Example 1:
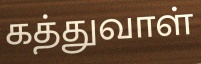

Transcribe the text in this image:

கத்துவாள்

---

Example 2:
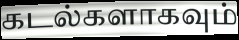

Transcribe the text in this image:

கடல்களாகவும்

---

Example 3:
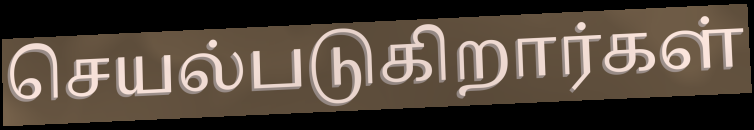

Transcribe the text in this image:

செயல்படுகிறார்கள்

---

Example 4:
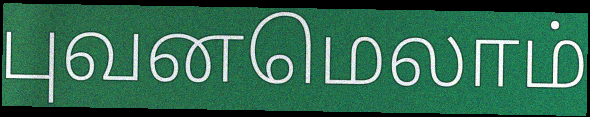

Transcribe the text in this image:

புவனமெலாம்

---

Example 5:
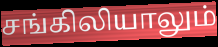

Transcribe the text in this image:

சங்கிலியாலும்